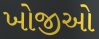
ખોજીઓ